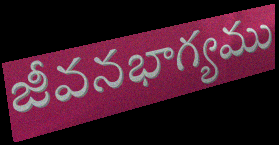
జీవనభాగ్యము